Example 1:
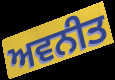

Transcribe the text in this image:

ਅਵਨੀਤ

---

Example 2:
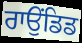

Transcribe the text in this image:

ਰਾਉਂਡਿਡ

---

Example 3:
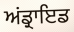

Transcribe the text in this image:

ਅਂਡ੍ਰਾਇਡ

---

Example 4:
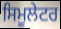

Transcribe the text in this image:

ਸਿਮੂਲੇਟਰ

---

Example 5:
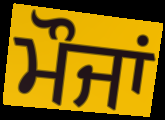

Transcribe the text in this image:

ਮੌਜਾਂ